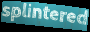
splintered